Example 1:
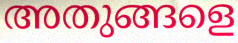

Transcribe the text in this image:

അതുങ്ങളെ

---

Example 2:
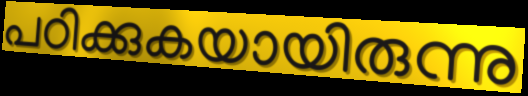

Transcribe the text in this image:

പഠിക്കുകയായിരുന്നു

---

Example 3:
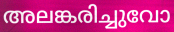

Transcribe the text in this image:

അലങ്കരിച്ചുവോ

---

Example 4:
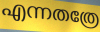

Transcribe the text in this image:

എന്നതത്രേ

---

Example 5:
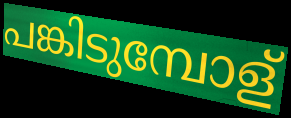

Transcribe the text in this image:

പങ്കിടുമ്പോള്